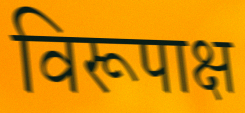
विरूपाक्ष